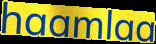
haamlaa